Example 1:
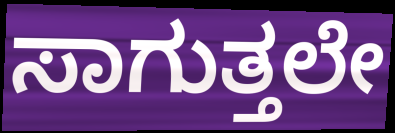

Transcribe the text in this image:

ಸಾಗುತ್ತಲೇ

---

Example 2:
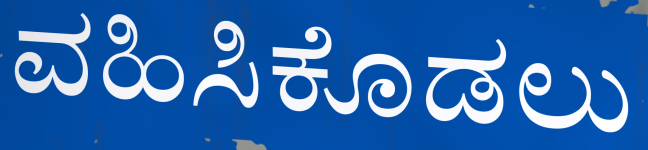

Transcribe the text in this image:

ವಹಿಸಿಕೊಡಲು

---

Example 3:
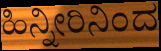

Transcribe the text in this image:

ಹಿನ್ನೀರಿನಿಂದ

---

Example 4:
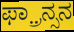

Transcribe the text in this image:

ಫ಼್ರಾನ್ಸನ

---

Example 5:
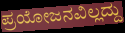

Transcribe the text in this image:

ಪ್ರಯೋಜನವಿಲ್ಲದ್ದು